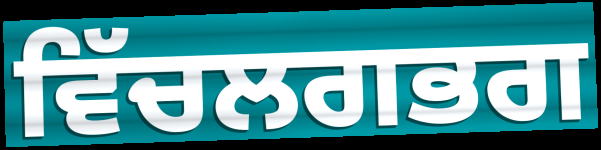
ਵਿੱਚਲਗਭਗ